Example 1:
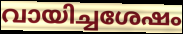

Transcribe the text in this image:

വായിച്ചശേഷം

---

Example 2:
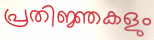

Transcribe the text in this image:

പ്രതിജ്ഞകളും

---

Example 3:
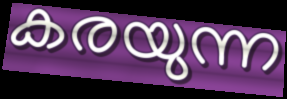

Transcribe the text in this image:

കരയുന്ന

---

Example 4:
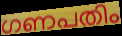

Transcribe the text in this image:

ഗണപതിം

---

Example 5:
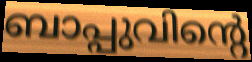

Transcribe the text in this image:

ബാപ്പുവിന്റെ